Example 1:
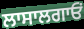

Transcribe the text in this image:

ਲਾਸਾਲਗਾਓਂ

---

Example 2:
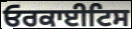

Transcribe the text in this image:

ਓਰਕਾਈਟਿਸ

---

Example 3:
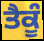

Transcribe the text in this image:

ਤੈਕੂੰ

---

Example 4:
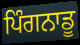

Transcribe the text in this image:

ਪਿੰਗਨਾਡੂ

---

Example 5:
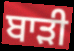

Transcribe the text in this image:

ਬਾੜੀ